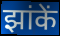
झांकें